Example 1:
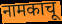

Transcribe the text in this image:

नामकाचू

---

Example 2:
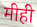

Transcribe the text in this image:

मीही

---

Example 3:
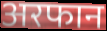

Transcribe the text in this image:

अरफान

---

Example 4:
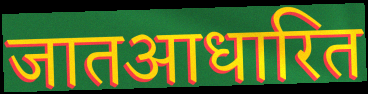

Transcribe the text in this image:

जातआधारित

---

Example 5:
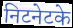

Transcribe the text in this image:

निटनेटके